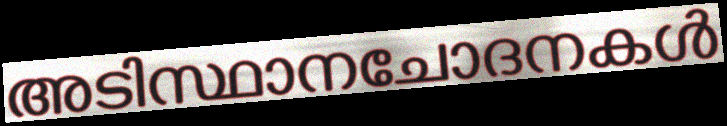
അടിസ്ഥാനചോദനകൾ